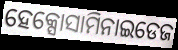
ହେକ୍ସୋସାମିନାଇଡେଜ